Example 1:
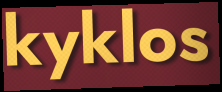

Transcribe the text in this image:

kyklos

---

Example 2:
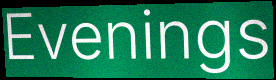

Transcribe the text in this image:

Evenings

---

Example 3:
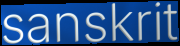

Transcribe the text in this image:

sanskrit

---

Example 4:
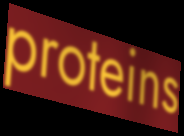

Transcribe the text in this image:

proteins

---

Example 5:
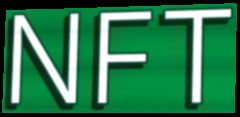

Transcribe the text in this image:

NFT